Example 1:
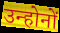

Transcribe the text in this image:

उन्होनों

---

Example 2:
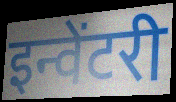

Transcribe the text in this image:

इन्वेंटरी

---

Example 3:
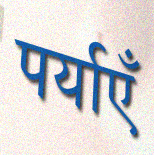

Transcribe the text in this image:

पर्याएँ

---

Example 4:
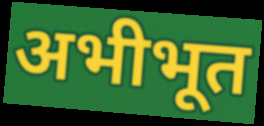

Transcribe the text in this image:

अभीभूत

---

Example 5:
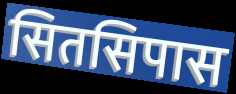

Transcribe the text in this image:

सितसिपास